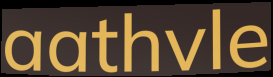
aathvle